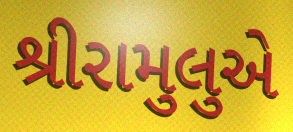
શ્રીરામુલુએ